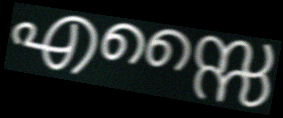
എസ്സൈ